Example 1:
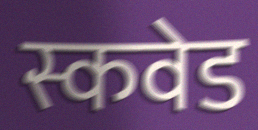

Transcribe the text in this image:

स्कवेड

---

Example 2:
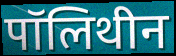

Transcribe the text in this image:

पॉलिथीन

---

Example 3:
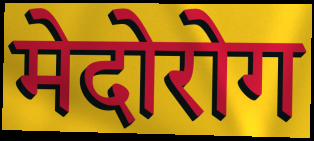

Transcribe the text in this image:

मेदोरोग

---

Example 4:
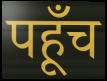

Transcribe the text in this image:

पहूँच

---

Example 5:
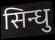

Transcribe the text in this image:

सिन्धु